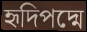
হৃদিপদ্মে